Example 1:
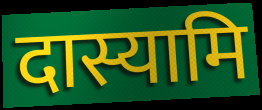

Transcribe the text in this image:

दास्यामि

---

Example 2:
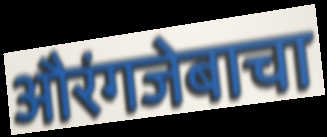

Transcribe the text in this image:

औरंगजेबाचा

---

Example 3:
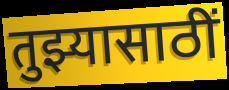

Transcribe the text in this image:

तुझ्यासाठीं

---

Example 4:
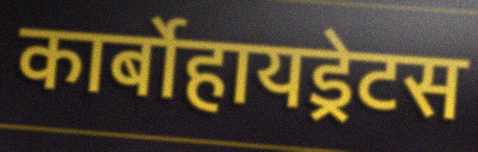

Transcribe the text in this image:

कार्बोहायड्रेटस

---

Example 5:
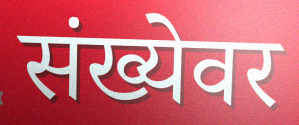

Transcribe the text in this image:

संख्येवर